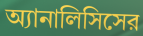
অ্যানালিসিসের